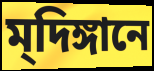
ম্‌দিঙ্গানে